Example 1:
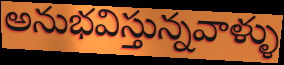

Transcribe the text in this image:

అనుభవిస్తున్నవాళ్ళు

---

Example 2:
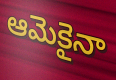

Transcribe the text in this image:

ఆమెకైనా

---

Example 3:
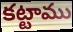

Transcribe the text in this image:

కట్టాము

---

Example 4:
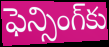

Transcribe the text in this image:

ఫెన్సింగ్‌కు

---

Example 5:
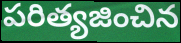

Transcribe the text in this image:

పరిత్యజించిన